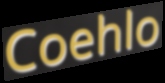
Coehlo